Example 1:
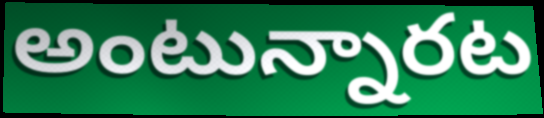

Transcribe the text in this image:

అంటున్నారట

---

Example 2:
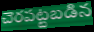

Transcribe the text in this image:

చెరపట్టబడిన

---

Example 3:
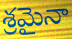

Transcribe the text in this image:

శ్రమైనా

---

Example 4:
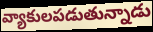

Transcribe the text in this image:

వ్యాకులపడుతున్నాడు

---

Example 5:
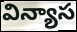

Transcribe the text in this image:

విన్యాస